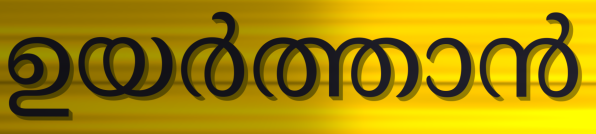
ഉയർത്താൻ